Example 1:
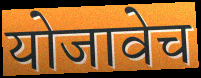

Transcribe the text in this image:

योजावेच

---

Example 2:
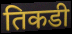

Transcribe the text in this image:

तिकडी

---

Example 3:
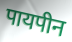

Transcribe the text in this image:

पायपीन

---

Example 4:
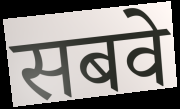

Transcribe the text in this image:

सबवे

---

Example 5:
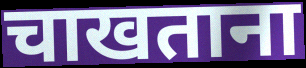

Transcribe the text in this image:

चाखताना